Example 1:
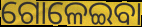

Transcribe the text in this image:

ଗୋଳେଇବା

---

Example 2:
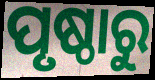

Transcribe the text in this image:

ପୃଷ୍ଠାରୁ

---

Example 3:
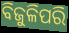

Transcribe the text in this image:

ବିଜୁଳିପରି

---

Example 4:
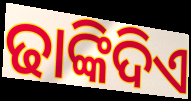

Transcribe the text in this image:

ଢାଙ୍କିଦିଏ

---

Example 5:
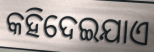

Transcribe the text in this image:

କହିଦେଇଯାଏ